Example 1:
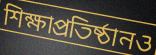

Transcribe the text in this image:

শিক্ষাপ্রতিষ্ঠানও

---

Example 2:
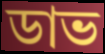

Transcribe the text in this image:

ডাভ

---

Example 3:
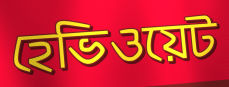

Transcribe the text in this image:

হেভিওয়েট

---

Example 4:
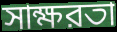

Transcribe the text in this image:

সাক্ষরতা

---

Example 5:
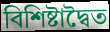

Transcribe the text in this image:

বিশিষ্টাদ্বৈত